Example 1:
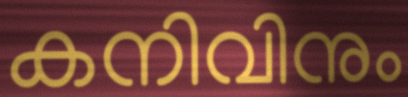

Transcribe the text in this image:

കനിവിനും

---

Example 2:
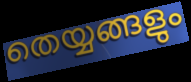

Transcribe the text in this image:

തെയ്യങ്ങളും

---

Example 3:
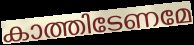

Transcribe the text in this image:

കാത്തിടേണമേ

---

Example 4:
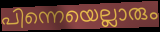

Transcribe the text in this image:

പിന്നെയെല്ലാരും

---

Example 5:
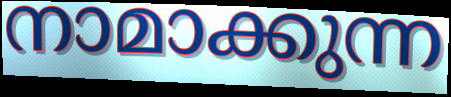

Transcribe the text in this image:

നാമാക്കുന്ന